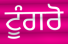
ਟੂੰਗਰੋ